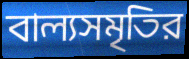
বাল্যসমৃতির